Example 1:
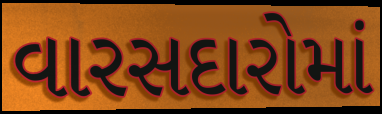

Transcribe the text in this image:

વારસદારોમાં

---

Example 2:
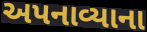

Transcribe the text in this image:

અપનાવ્યાના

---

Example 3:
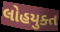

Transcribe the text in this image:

લોહયુક્ત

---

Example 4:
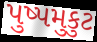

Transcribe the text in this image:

પુષ્પમુકુટ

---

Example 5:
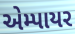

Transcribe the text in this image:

એમ્પાયર